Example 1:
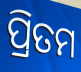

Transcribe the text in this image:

ପ୍ରିତମ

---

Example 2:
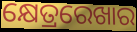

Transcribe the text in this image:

କ୍ଷେତ୍ରରେଖାର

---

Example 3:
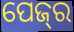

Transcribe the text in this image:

ପେଜ୍‌ର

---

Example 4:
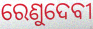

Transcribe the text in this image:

ରେଣୁଦେବୀ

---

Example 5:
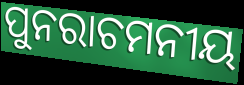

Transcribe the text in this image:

ପୁନରାଚମନୀୟ